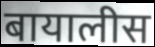
बायालीस